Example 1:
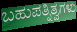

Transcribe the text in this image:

ಬಹುಪತ್ನಿತ್ವಗಳು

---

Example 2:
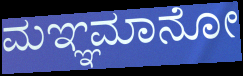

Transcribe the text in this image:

ಮಞ್ಞಮಾನೋ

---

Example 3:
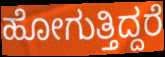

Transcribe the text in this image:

ಹೋಗುತ್ತಿದ್ದರೆ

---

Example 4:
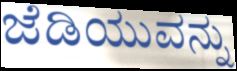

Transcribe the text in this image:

ಜೆಡಿಯುವನ್ನು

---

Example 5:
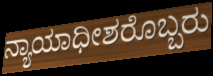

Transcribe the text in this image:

ನ್ಯಾಯಾಧೀಶರೊಬ್ಬರು